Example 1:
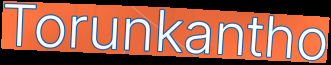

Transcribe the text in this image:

Torunkantho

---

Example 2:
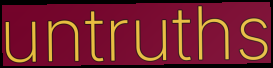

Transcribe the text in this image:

untruths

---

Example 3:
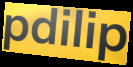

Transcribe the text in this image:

pdilip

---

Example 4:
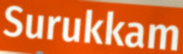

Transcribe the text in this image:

Surukkam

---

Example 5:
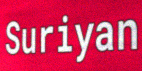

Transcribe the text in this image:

Suriyan